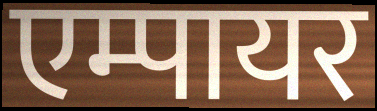
एम्पायर